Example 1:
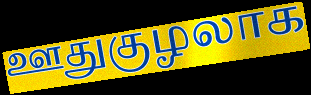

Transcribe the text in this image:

ஊதுகுழலாக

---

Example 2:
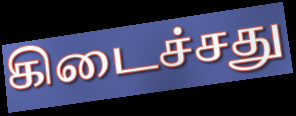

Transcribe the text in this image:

கிடைச்சது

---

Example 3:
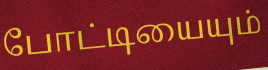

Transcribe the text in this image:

போட்டியையும்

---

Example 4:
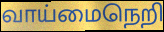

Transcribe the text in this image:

வாய்மைநெறி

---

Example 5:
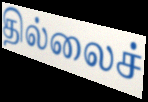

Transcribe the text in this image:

தில்லைச்